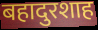
बहादुरशाह